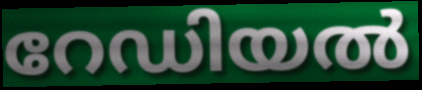
റേഡിയൽ